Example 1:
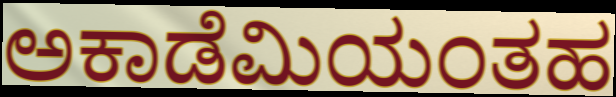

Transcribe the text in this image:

ಅಕಾಡೆಮಿಯಂತಹ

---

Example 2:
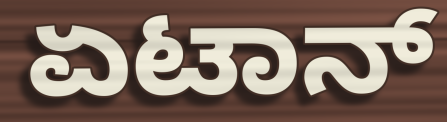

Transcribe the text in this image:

ಏಟಾನ್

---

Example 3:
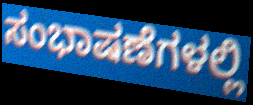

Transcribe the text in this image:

ಸಂಭಾಷಣೆಗಳಲ್ಲಿ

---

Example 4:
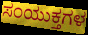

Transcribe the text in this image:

ಸಂಯುಕ್ತಗಳ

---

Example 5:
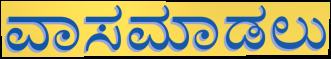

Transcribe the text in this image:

ವಾಸಮಾಡಲು